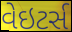
વેઇટર્સ